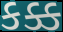
કક્ક